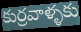
కుర్రవాళ్ళకు